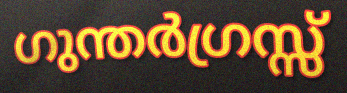
ഗുന്തർഗ്രസ്സ്